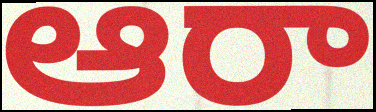
ఆరా